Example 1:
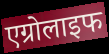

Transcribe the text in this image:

एग्रोलाइफ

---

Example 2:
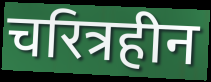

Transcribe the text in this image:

चरित्रहीन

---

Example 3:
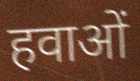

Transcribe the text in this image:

हवाओं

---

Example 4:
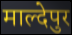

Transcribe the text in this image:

माल्देपुर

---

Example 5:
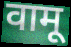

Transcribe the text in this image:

वामू